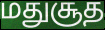
மதுசூத